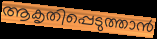
ആകൃതിപ്പെടുത്താൻ